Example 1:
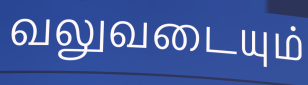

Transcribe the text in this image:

வலுவடையும்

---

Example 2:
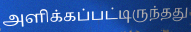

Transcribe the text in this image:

அளிக்கப்பட்டிருந்தது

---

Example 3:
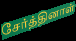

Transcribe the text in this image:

சேர்த்தினாள்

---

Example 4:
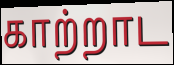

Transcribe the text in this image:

காற்றாட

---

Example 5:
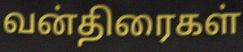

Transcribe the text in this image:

வன்திரைகள்